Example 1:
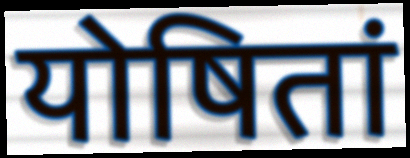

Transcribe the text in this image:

योषितां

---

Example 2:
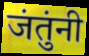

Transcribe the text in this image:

जंतुंनी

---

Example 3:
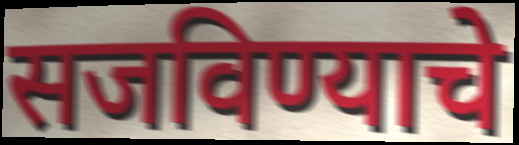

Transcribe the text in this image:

सजविण्याचे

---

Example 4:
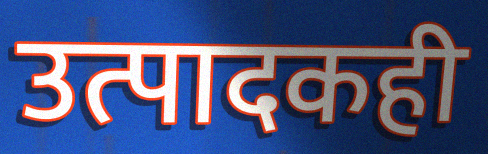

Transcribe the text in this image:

उत्पादकही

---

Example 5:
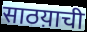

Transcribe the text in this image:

साठय़ाची